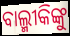
ବାଲ୍ମୀକିଙ୍କୁ